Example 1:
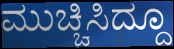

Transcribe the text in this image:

ಮುಚ್ಚಿಸಿದ್ದೂ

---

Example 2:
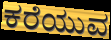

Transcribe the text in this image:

ಕರೆಯುವ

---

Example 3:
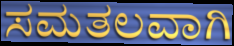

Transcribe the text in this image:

ಸಮತಲವಾಗಿ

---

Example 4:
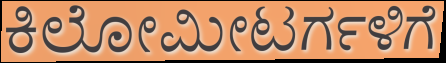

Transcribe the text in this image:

ಕಿಲೋಮೀಟರ್ಗಳಿಗೆ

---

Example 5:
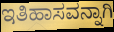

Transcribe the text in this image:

ಇತಿಹಾಸವನ್ನಾಗಿ